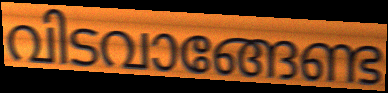
വിടവാങ്ങേണ്ട